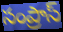
సంప్రాస్